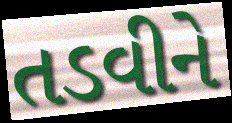
તડવીને